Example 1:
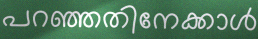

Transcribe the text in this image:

പറഞ്ഞതിനേക്കാൾ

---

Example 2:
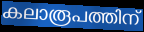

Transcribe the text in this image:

കലാരൂപത്തിന്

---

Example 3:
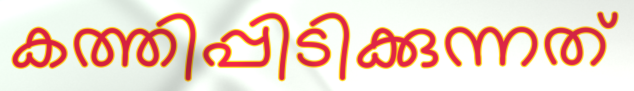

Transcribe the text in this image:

കത്തിപ്പിടിക്കുന്നത്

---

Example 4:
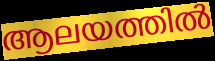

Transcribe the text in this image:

ആലയത്തിൽ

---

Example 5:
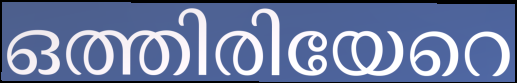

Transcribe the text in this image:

ഒത്തിരിയേറെ